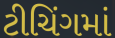
ટીચિંગમાં